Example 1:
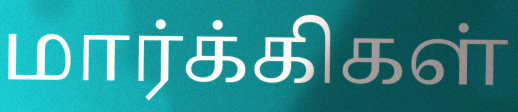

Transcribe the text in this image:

மார்க்கிகள்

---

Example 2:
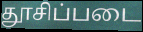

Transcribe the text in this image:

தூசிப்படை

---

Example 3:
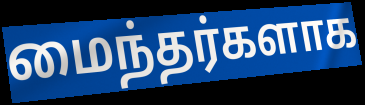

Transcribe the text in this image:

மைந்தர்களாக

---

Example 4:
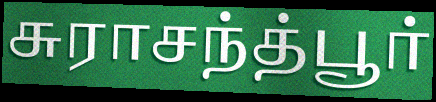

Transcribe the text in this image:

சுராசந்த்பூர்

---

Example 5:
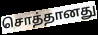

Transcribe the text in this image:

சொத்தானது